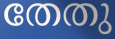
തേതു